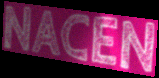
NACEN